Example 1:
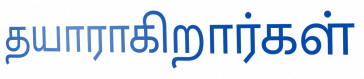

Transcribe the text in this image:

தயாராகிறார்கள்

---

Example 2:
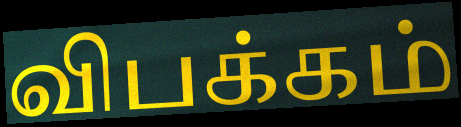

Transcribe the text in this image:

விபக்கம்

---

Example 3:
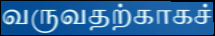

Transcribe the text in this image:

வருவதற்காகச்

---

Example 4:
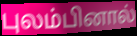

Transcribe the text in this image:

புலம்பினால்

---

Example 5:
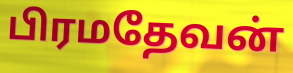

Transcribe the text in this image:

பிரமதேவன்